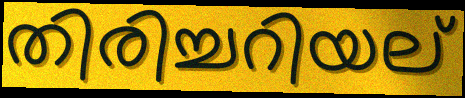
തിരിച്ചറിയല്